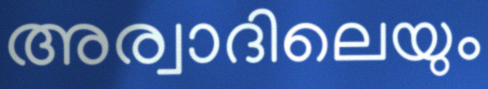
അര്വാദിലെയും